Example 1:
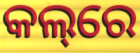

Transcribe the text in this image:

କଲ୍‌ରେ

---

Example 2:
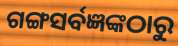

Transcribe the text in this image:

ଗଙ୍ଗସର୍ବଜ୍ଞଙ୍କଠାରୁ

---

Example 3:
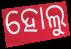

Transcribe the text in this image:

ହୋଲୁ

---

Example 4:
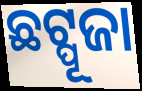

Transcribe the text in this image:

ଛଟ୍ପୂଜା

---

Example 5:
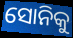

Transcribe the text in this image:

ସୋନିକୁ